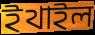
ইথাইল